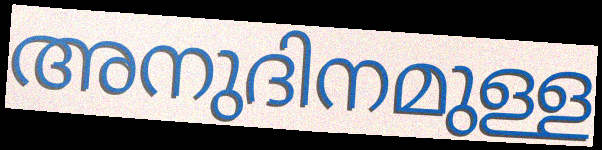
അനുദിനമുള്ള